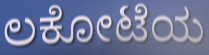
ಲಕೋಟೆಯ